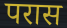
परास